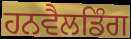
ਹਨਵੈਲਡਿੰਗ